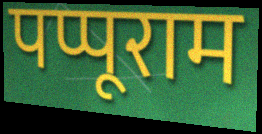
पप्पूराम